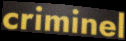
criminel